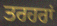
ਤਰਹਰਾਂ